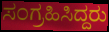
ಸಂಗ್ರಹಿಸಿದ್ದರು